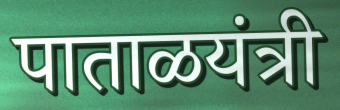
पाताळयंत्री